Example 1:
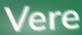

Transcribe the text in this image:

Vere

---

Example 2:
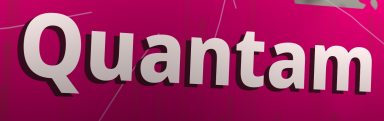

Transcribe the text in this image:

Quantam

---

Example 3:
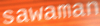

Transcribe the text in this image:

sawaman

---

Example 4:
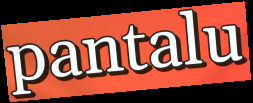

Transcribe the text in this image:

pantalu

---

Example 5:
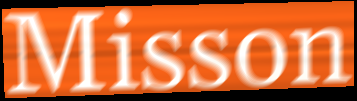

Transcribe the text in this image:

Misson